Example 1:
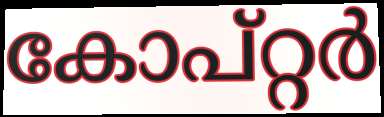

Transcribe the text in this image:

കോപ്റ്റർ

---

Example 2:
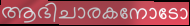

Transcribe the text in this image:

ആഭിചാരകനോടോ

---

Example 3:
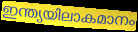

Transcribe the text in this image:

ഇന്ത്യയിലാകമാനം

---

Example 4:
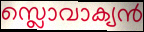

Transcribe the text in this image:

സ്ലൊവാക്യൻ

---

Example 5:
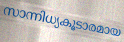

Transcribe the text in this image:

സാന്നിധ്യകൂടാരമായ